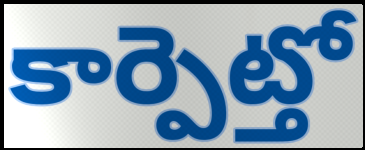
కార్పెట్తో